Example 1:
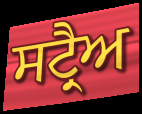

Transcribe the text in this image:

ਸਟ੍ਰੈਅ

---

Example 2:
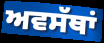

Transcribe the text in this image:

ਅਵਸੱਥਾਂ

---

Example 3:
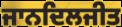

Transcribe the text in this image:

ਜਾਨਦਿਲਜੀਤ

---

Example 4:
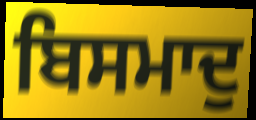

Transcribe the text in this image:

ਬਿਸਮਾਦੁ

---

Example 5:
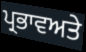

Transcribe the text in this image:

ਪ੍ਰਭਾਵਅਤੇ